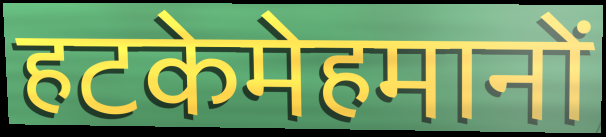
हटकेमेहमानों